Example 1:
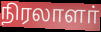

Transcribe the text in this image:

நிரலாளர்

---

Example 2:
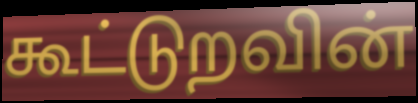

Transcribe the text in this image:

கூட்டுறவின்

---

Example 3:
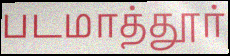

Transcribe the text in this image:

படமாத்தூர்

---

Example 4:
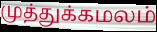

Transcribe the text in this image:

முத்துக்கமலம்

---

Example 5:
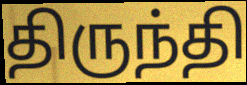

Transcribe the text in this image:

திருந்தி